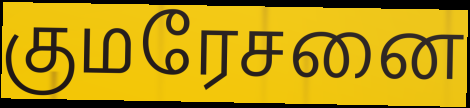
குமரேசனை